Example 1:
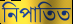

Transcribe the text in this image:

নিপাতিত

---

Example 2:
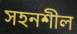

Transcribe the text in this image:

সহনশীল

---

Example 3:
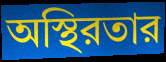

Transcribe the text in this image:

অস্থিরতার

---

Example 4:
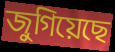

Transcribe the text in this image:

জুগিয়েছে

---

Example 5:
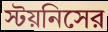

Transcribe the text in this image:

স্টয়নিসের